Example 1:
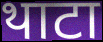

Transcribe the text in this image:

थाटा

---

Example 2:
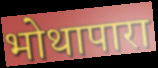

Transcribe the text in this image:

भोथापारा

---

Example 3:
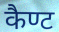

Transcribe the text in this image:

कैण्ट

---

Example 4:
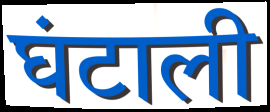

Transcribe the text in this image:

घंटाली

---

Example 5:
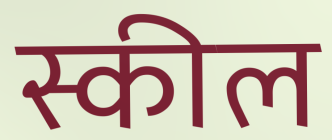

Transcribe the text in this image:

स्‍कील